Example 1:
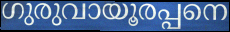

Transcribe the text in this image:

ഗുരുവായൂരപ്പനെ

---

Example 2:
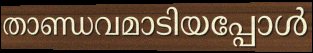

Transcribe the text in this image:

താണ്ഡവമാടിയപ്പോൾ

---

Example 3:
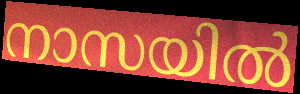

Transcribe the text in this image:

നാസയിൽ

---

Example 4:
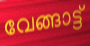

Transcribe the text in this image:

വേങ്ങാട്ട്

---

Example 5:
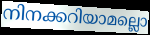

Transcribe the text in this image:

നിനക്കറിയാമല്ലൊ